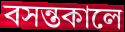
বসন্তকালে